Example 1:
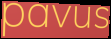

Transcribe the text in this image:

pavus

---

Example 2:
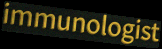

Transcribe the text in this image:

immunologist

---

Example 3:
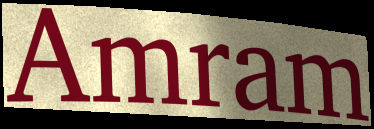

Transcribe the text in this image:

Amram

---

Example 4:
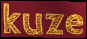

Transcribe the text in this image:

kuze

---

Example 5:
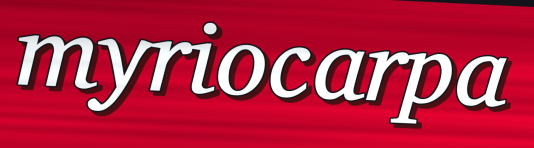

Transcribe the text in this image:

myriocarpa